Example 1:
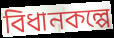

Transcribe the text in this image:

বিধানকল্পে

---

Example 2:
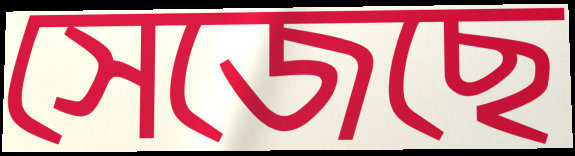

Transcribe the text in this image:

সেজেছে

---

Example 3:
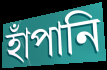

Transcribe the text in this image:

হাঁপানি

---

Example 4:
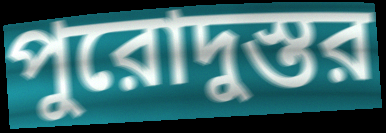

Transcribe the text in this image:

পুরোদুস্তর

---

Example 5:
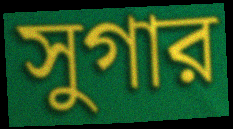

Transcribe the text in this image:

সুগার